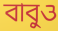
বাবুও